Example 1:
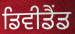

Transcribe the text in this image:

ਡਿਵੀਡੈਂਡ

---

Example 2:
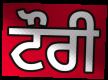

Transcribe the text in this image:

ਟੌਰੀ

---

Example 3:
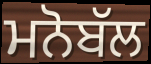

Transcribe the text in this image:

ਮਨੋਬੱਲ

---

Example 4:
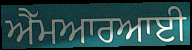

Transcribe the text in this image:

ਐੱਮਆਰਆਈ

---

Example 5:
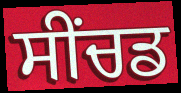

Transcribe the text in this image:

ਸੀਂਚਡ